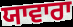
ਯਾਵਾਰਾ